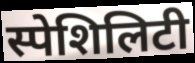
स्पेशिलिटी